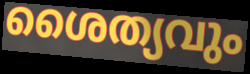
ശൈത്യവും